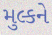
મુલ્કને